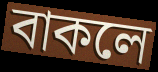
বাকলে